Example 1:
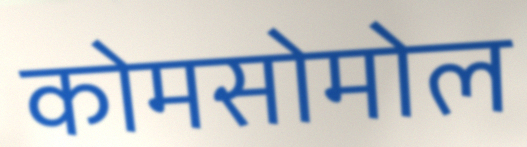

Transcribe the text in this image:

कोमसोमोल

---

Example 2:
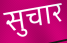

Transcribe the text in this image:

सुचार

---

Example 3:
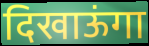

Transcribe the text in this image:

दिखाऊंगा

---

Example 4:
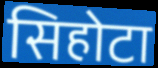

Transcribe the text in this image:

सिहोटा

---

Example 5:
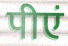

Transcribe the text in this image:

पीएं